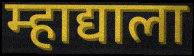
म्हाद्याला